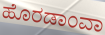
ಹೊರಡಾಂವಾ